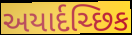
અયાર્દચ્છિક